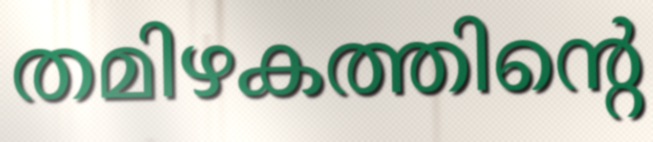
തമിഴകത്തിന്റെ